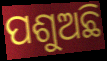
ପଶୁଅଛି